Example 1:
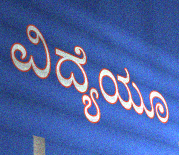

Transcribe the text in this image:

ವಿದ್ಯೆಯೂ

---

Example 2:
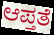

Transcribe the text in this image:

ಆಪ್ತತೆ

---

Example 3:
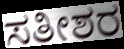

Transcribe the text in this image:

ಸತೀಶರ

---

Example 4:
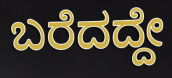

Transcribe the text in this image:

ಬರೆದದ್ದೇ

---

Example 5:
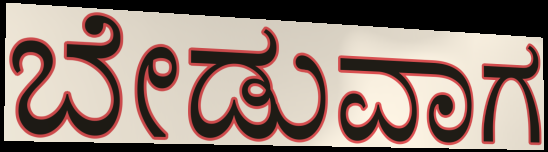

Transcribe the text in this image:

ಬೇಡುವಾಗ